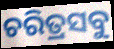
ଚରିତ୍ରସବୁ